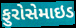
ફુરોસેમાઇડ